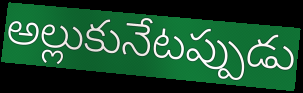
అల్లుకునేటప్పుడు